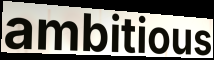
ambitious